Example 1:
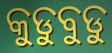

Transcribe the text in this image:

କୁଡୁବୁଡୁ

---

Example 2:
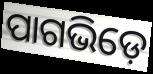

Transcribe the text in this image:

ପାଗଭିଡ଼େ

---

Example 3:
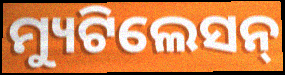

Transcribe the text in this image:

ମ୍ୟୁଟିଲେସନ୍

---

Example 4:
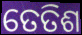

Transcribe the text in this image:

ତେତିଶ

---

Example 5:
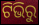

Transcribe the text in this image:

ଟିଭିରୁ